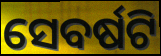
ସେବର୍ଷଟି